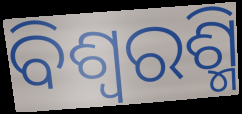
ବିଶ୍ୱରଶ୍ମି